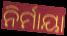
ନିର୍ମାୟା